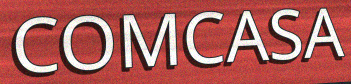
COMCASA